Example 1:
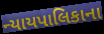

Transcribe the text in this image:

ન્યાયપાલિકાના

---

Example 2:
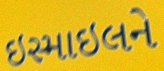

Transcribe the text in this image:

ઇસ્માઇલને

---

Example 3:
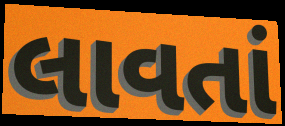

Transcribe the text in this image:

લાવતાં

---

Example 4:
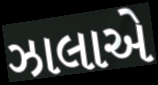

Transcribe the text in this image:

ઝાલાએ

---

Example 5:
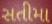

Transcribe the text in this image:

સતીમા